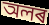
অলৰ